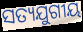
ସତ୍ୟଯୁଗୀୟ